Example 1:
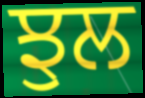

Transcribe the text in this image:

ਝੁਲ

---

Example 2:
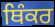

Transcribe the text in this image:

ਥਿੰਕਰ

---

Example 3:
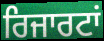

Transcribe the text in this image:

ਰਿਜਾਰਟਾਂ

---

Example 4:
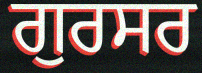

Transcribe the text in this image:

ਗੁਰਸਰ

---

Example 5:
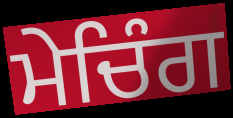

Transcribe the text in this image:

ਮੇਚਿੰਗ